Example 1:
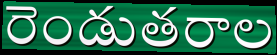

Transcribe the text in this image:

రెండుతరాల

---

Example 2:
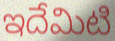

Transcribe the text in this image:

ఇదేమిటి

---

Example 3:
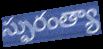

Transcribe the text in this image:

స్ఫురంత్యా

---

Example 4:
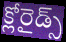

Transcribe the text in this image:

క్లోరైడ్స్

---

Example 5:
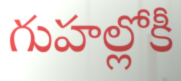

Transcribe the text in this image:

గుహల్లోకీ